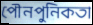
পৌনপুনিকতা